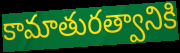
కామాతురత్వానికి